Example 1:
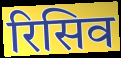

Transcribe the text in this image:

रिसिव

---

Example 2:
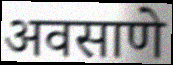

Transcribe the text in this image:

अवसाणे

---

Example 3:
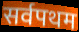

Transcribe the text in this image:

सर्वपथम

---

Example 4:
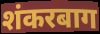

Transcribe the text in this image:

शंकरबाग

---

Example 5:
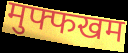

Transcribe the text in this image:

मुफ्फखम